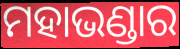
ମହାଭଣ୍ଡାର